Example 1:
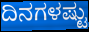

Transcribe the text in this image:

ದಿನಗಳಷ್ಟು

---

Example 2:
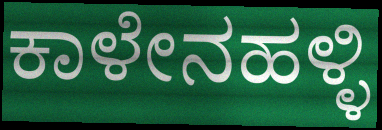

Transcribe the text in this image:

ಕಾಳೇನಹಳ್ಳಿ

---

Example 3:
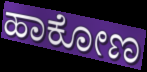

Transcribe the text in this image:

ಹಾಕೋಣ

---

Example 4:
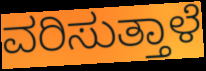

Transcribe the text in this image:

ವರಿಸುತ್ತಾಳೆ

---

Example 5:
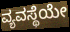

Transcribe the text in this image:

ವ್ಯವಸ್ಥೆಯೇ